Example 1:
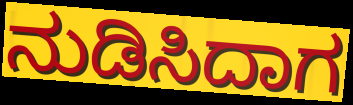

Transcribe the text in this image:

ನುಡಿಸಿದಾಗ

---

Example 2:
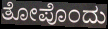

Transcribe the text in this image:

ತೋಪೊಂದು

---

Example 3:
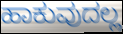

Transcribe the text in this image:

ಹಾಕುವುದಲ್ಲ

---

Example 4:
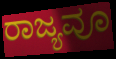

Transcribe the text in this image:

ರಾಜ್ಯವೂ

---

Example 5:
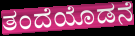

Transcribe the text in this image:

ತಂದೆಯೊಡನೆ